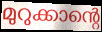
മുറുക്കാന്റെ